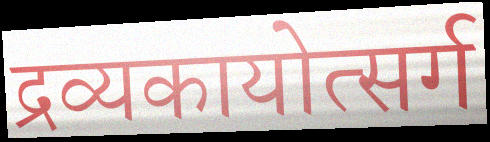
द्रव्यकायोत्सर्ग